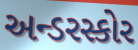
અન્ડરસ્કોર